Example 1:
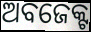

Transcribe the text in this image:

ଅବଜେକ୍ଟ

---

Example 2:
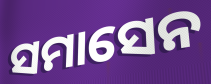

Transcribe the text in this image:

ସମାସେନ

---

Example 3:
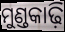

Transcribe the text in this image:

ମୁଣ୍ଡକାଢ଼ି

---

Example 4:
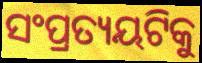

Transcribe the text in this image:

ସଂପ୍ରତ୍ୟୟଟିକୁ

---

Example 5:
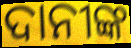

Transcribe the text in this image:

ଦାନୀଙ୍କ